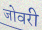
जोवरी